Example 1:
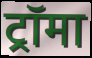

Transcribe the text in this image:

ट्रॉमा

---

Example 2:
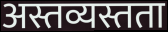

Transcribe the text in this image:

अस्तव्यस्तता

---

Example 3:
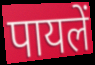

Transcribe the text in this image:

पायलें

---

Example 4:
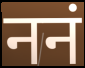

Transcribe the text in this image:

ननं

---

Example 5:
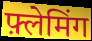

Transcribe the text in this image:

फ़्लेमिंग